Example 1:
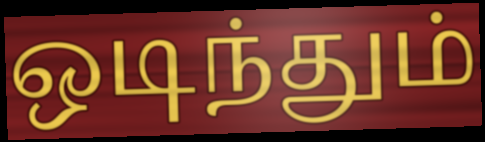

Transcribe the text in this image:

ஒடிந்தும்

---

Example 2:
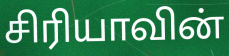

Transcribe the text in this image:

சிரியாவின்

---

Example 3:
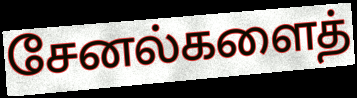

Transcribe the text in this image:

சேனல்களைத்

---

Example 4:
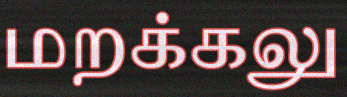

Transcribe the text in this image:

மறக்கலு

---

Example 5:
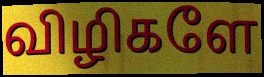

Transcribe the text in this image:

விழிகளே